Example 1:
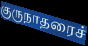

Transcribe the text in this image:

குருநாதரைச்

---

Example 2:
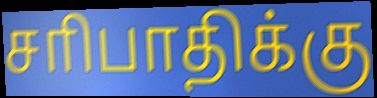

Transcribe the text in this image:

சரிபாதிக்கு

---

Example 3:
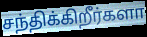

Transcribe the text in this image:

சந்திக்கிறீர்களா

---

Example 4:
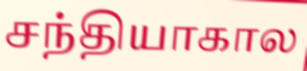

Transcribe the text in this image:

சந்தியாகால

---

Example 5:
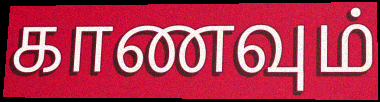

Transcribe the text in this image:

காணவும்